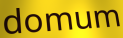
domum